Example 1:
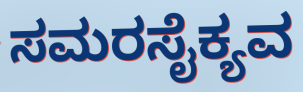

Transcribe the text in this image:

ಸಮರಸೈಕ್ಯವ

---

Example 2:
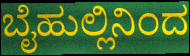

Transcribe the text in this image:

ಬೈಹುಲ್ಲಿನಿಂದ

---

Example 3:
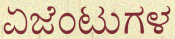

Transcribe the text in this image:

ಏಜೆಂಟುಗಳ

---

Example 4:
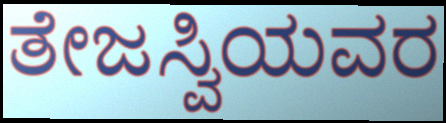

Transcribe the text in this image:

ತೇಜಸ್ವಿಯವರ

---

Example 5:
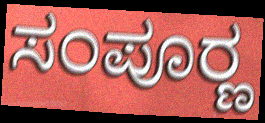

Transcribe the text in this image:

ಸಂಪೂರ್‍ಣ